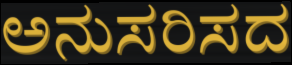
ಅನುಸರಿಸದ